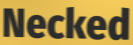
Necked